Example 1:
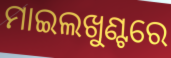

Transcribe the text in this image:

ମାଇଲଖୁଣ୍ଟରେ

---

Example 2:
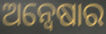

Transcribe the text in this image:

ଅନ୍ବେଷାର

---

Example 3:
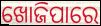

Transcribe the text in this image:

ଖୋଜିପାରେ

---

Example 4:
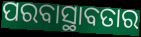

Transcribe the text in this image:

ପରବାସ୍ଥାବତାର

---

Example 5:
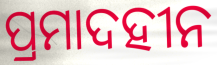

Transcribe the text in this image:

ପ୍ରମାଦହୀନ